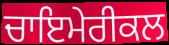
ਚਾਇਮੇਰੀਕਲ